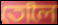
তোলৈ